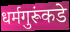
धर्मगुरूंकडे